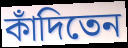
কাঁদিতেন